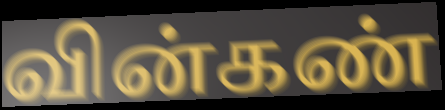
வின்கண்